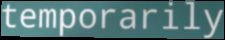
temporarily